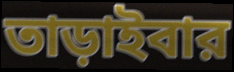
তাড়াইবার